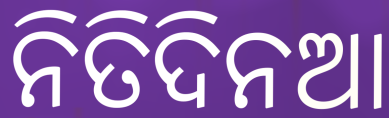
ନିତିଦିନଆ